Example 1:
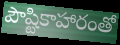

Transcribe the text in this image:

పౌష్టికాహారంతో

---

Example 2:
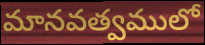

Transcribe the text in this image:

మానవత్వములో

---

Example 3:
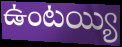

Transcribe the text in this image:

ఉంటయ్యి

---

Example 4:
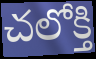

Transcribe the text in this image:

చలోక్తి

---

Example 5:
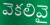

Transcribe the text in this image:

వెకలివై